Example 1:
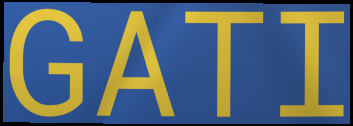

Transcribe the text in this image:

GATI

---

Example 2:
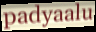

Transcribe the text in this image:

padyaalu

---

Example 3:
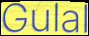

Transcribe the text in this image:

Gulal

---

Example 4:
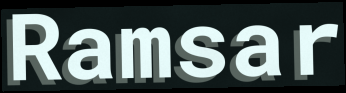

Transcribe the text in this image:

Ramsar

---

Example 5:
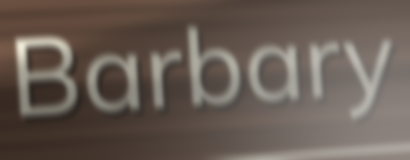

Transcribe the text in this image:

Barbary